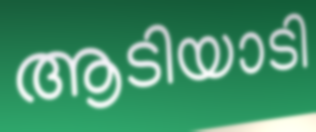
ആടിയാടി